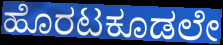
ಹೊರಟಕೂಡಲೇ